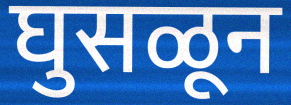
घुसळून